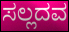
ಸಲ್ಲದವ